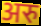
अरु